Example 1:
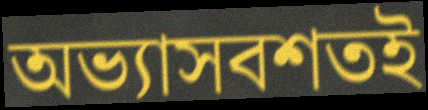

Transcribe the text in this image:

অভ্যাসবশতই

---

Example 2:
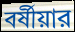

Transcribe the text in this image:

বর্ষীয়ার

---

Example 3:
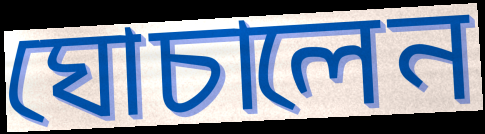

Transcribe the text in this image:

ঘোচালেন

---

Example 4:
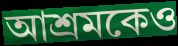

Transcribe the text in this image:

আশ্রমকেও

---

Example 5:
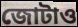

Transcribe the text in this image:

জোটাও